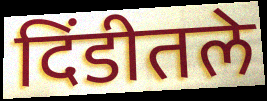
दिंडीतले